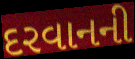
દરવાનની